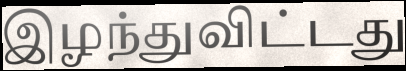
இழந்துவிட்டது